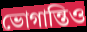
ভোগান্তিও